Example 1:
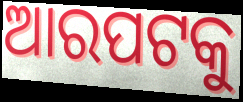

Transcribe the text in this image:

ଆରପଟକୁ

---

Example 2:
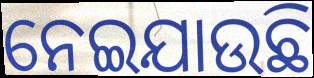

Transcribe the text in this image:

ନେଇଯାଉଛି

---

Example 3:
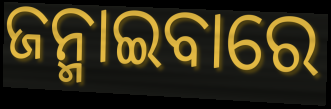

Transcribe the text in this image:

ଜନ୍ମାଇବାରେ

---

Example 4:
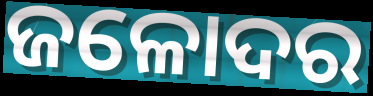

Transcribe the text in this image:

ଜଳୋଦର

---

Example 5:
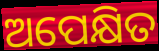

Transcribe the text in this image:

ଅପେକ୍ଷିତ